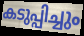
കടുപ്പിച്ചും